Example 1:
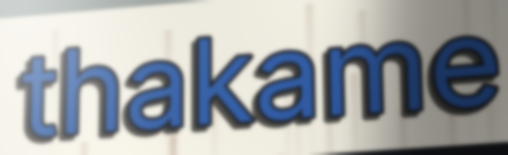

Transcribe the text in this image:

thakame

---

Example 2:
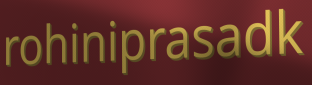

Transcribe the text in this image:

rohiniprasadk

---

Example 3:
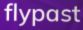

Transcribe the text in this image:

flypast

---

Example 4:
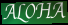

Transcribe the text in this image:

ALOHA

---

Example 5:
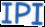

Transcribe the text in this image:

IPI